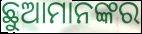
ଛୁଆମାନଙ୍କର